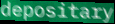
depositary